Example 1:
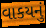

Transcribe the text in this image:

વાકયનું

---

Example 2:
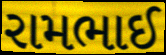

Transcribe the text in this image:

રામભાઈ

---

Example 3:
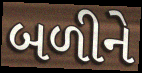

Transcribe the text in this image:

બળીને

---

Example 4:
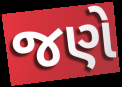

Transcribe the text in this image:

જણે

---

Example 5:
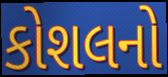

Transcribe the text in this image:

કોશલનો